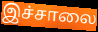
இச்சாலை